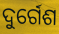
ଦୁର୍ଗେଶ